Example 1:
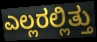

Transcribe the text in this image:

ಎಲ್ಲರಲ್ಲಿತ್ತು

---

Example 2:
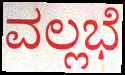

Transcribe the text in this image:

ವಲ್ಲಭೆ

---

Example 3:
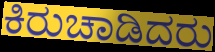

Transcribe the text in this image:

ಕಿರುಚಾಡಿದರು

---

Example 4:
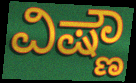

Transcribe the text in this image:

ವಿಷ್ಣೌ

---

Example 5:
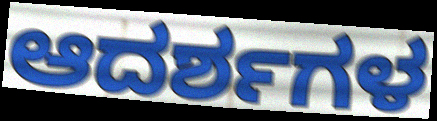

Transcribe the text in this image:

ಆದರ್ಶಗಳ